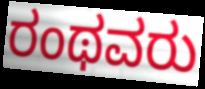
ರಂಥವರು